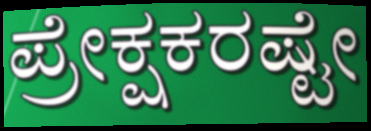
ಪ್ರೇಕ್ಷಕರಷ್ಟೇ